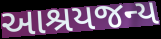
આશ્રયજન્ય